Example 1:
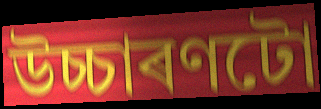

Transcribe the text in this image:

উচ্চাৰণটো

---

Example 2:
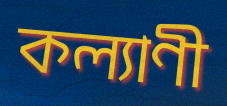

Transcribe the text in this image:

কল্যাণী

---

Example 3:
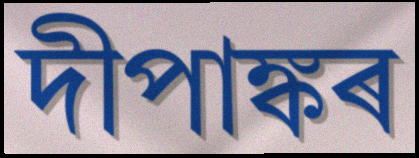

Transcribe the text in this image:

দীপাঙ্কৰ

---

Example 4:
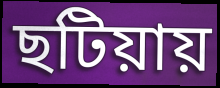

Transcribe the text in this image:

ছটিয়ায়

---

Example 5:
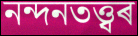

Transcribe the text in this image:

নন্দনতত্ত্বৰ